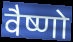
वैष्णो